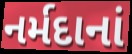
નર્મદાનાં